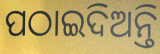
ପଠାଇଦିଅନ୍ତି